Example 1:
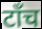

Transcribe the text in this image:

टाँच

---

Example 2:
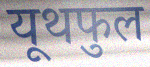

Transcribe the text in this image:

यूथफुल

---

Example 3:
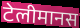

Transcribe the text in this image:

टेलीमानस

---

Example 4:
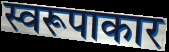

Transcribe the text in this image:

स्वरूपाकार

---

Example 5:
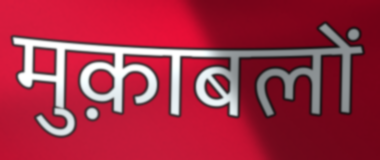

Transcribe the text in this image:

मुक़ाबलों